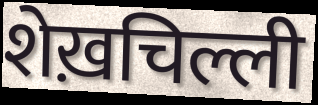
शेख़चिल्ली